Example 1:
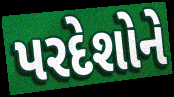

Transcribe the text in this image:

પરદેશોને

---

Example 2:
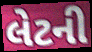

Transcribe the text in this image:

લેટની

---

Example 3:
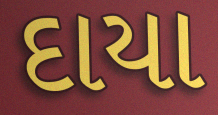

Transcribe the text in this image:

દાયા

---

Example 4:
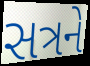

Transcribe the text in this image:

સત્રને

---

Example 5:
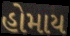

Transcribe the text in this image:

હોમાય